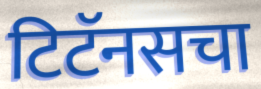
टिटॅनसचा